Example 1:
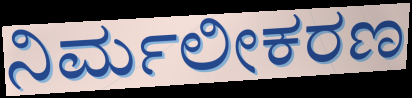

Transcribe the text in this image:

ನಿರ್ಮಲೀಕರಣ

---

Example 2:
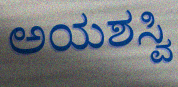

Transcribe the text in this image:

ಅಯಶಸ್ವಿ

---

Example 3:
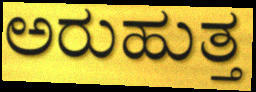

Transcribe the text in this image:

ಅರುಹುತ್ತ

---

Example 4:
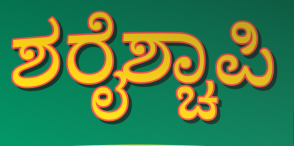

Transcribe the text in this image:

ಶರೈಶ್ಚಾಪಿ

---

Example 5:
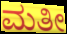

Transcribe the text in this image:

ಮತೀ